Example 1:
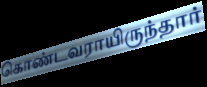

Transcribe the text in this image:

கொண்டவராயிருந்தார்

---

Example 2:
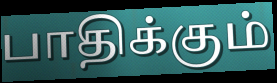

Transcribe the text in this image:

பாதிக்கும்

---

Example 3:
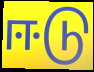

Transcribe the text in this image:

ஈடு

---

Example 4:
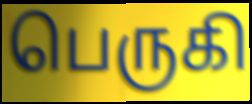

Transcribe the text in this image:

பெருகி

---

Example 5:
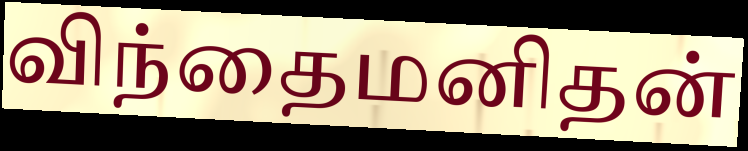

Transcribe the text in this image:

விந்தைமனிதன்